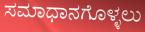
ಸಮಾಧಾನಗೊಳ್ಳಲು